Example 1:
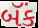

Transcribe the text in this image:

બૅંક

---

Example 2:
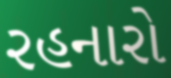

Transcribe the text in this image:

રહનારો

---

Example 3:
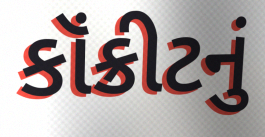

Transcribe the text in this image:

કૉંક્રીટનું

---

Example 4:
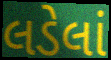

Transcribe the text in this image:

લડેલાં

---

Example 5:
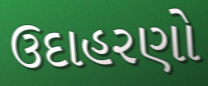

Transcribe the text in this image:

ઉદાહરણો